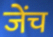
जेंच